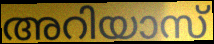
അറിയാസ്